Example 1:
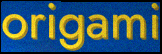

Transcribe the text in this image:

origami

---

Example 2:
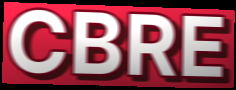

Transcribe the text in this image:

CBRE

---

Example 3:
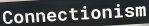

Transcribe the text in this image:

Connectionism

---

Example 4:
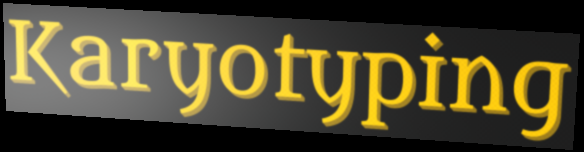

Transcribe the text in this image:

Karyotyping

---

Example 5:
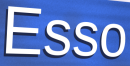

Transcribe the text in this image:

Esso